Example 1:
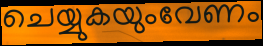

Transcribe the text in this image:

ചെയ്യുകയുംവേണം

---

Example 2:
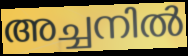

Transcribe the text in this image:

അച്ചനിൽ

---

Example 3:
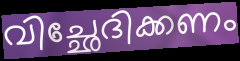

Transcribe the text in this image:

വിച്ഛേദിക്കണം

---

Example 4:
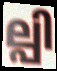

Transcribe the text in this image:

ല്പി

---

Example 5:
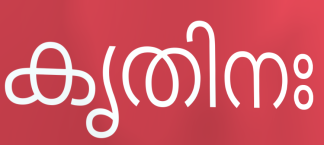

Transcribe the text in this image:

കൃതിനഃ